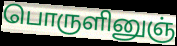
பொருளினுஞ்